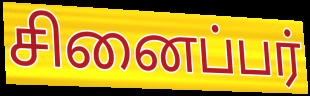
சினைப்பர்